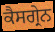
ਕੈਸਗ੍ਰੇਨ